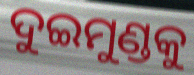
ଦୁଇମୁଣ୍ଡକୁ